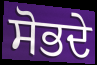
ਸੋਭਦੇ